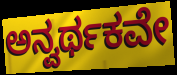
ಅನ್ವರ್ಥಕವೇ